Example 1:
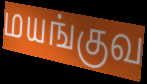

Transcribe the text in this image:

மயங்குவ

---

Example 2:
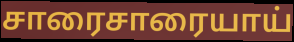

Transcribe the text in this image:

சாரைசாரையாய்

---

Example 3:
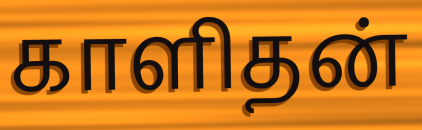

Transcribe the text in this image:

காளிதன்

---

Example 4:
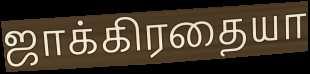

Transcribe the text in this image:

ஜாக்கிரதையா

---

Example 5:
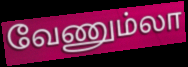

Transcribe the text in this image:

வேணும்லா